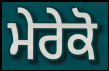
ਮੇਰੇਕੋ